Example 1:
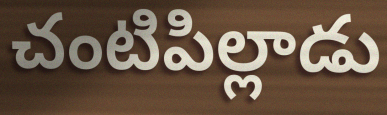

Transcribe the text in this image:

చంటిపిల్లాడు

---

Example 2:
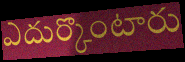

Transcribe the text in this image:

ఎదుర్కొంటారు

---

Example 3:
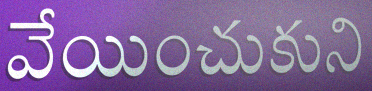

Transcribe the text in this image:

వేయించుకుని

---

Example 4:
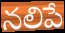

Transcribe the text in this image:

నలిపే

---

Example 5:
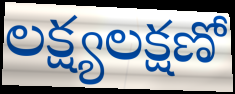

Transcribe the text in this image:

లక్ష్యలక్షణో